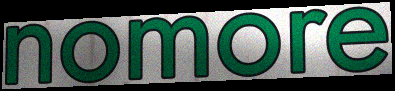
nomore